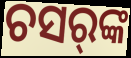
ଚସର୍‌ଙ୍କ